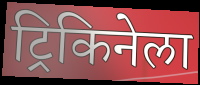
ट्रिकिनेला